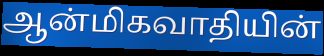
ஆன்மிகவாதியின்